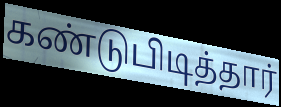
கண்டுபிடித்தார்